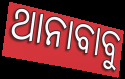
ଥାନାବାବୁ